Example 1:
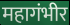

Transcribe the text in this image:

महागंभीर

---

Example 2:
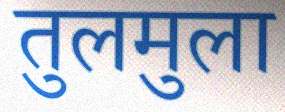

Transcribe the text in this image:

तुलमुला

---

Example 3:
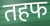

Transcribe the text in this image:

तहफ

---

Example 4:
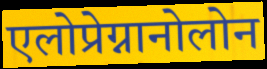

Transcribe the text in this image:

एलोप्रेग्नानोलोन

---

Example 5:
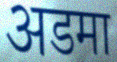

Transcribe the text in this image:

अडमा